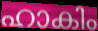
ഹാകിം